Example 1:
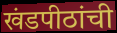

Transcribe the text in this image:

खंडपीठांची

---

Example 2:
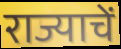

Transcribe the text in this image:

राज्याचें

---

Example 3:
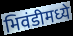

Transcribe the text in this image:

भिवंडीमध्ये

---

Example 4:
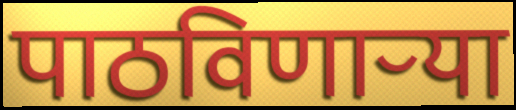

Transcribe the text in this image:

पाठविणाऱ्या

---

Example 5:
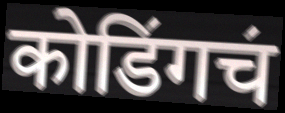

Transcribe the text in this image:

कोडिंगचं